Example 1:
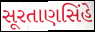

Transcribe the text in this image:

સૂરતાણસિંહે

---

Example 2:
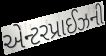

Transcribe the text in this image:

એન્ટરપ્રાઈઝની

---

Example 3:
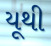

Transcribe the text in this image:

યૂથી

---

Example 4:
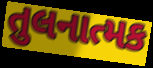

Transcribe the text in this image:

તુલનાત્મક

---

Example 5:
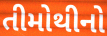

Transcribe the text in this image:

તીમોથીનો